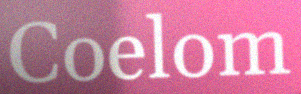
Coelom